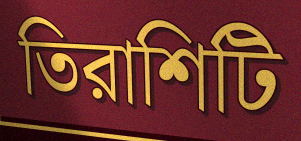
তিরাশিটি